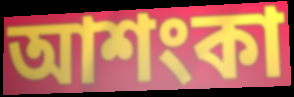
আশংকা